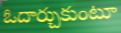
ఓదార్చుకుంటూ